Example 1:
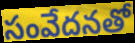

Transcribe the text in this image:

సంవేదనతో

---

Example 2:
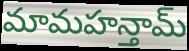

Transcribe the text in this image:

మామహన్తామ్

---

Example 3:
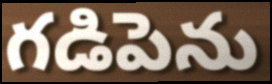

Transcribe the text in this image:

గడిపెను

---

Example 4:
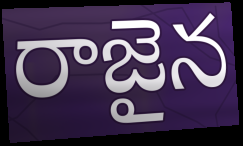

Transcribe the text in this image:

రాజైన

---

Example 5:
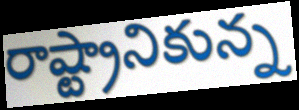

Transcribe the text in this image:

రాష్ట్రానికున్న